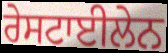
ਰੇਸਟਾਈਲੇਨ